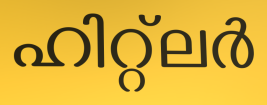
ഹിറ്റ്ലർ